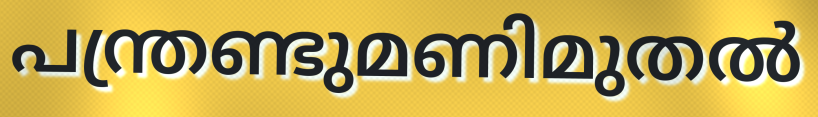
പന്ത്രണ്ടുമണിമുതൽ